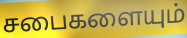
சபைகளையும்